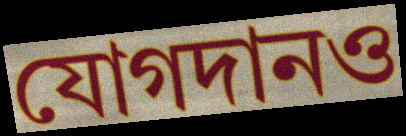
যোগদানও